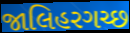
જાલિહરગચ્છ